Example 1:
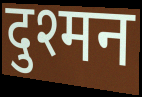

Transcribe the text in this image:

दुश्मन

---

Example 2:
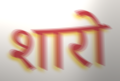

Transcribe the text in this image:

शारो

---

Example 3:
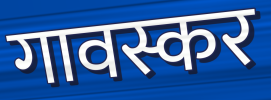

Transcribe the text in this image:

गावस्कर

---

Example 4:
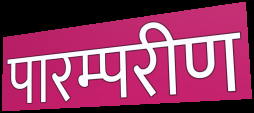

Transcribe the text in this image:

पारम्परीण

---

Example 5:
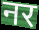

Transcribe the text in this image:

नर